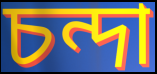
চন্দা